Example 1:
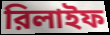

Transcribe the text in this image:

রিলাইফ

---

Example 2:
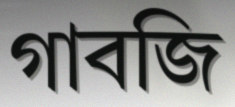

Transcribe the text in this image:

গাবজি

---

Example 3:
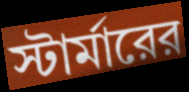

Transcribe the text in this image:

স্টার্মারের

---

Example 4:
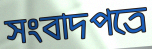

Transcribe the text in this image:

সংবাদপত্রে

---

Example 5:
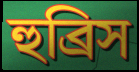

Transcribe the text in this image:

হুব্রিস